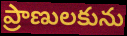
ప్రాణులకును